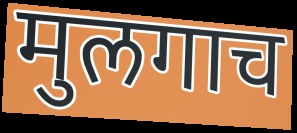
मुलगाच